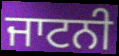
ਜਾਟਨੀ